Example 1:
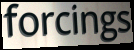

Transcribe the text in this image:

forcings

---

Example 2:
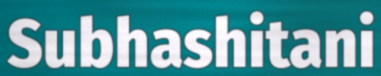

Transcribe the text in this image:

Subhashitani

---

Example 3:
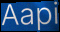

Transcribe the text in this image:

Aapi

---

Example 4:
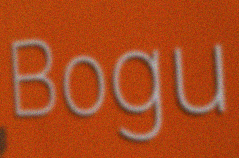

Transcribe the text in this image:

Bogu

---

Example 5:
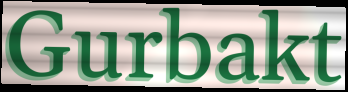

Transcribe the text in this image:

Gurbakt